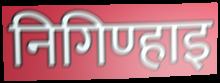
निगिण्हाइ